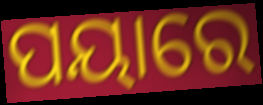
ପୟାରେ